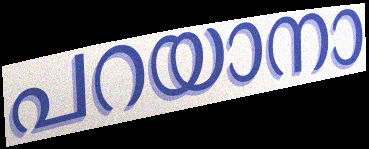
പറയാനാ